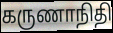
கருணாநிதி